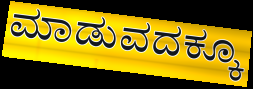
ಮಾಡುವದಕ್ಕೂ